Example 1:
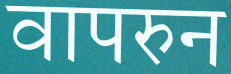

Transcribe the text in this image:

वापरुन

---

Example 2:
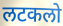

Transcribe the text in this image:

लटकलो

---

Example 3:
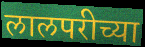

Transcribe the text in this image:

लालपरीच्या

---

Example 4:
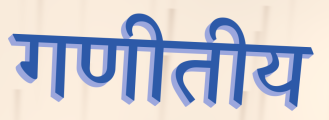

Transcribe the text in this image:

गणीतीय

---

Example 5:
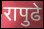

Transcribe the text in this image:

रापुढे